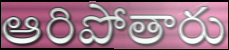
ఆరిపోతారు